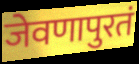
जेवणापुरतं